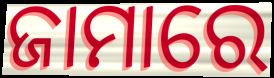
ଜାମାରେ